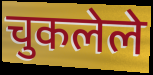
चुकलेले